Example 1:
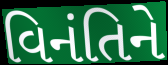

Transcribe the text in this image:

વિનંતિને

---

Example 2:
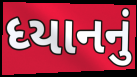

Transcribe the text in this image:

ધ્યાનનું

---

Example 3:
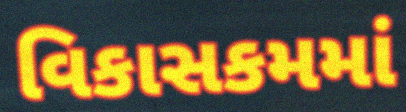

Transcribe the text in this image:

વિકાસકમમાં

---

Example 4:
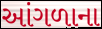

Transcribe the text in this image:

આંગળાના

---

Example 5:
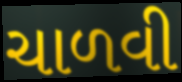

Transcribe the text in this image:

ચાળવી